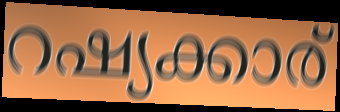
റഷ്യക്കാര്